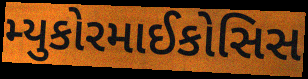
મ્યુકોરમાઈકોસિસ